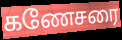
கணேசரை